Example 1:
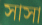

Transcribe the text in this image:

সাসা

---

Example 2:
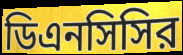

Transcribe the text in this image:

ডিএনসিসির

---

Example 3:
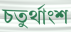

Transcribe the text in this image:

চতুর্থাংশ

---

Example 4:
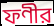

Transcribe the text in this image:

ফণীর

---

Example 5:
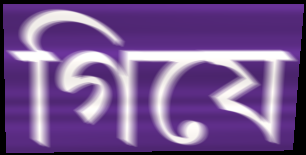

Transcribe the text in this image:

গিযে